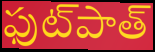
ఫుట్‌పాత్